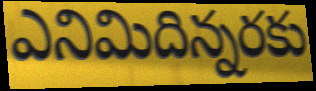
ఎనిమిదిన్నరకు